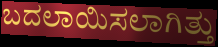
ಬದಲಾಯಿಸಲಾಗಿತ್ತು